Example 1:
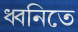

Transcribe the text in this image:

ধ্বনিতে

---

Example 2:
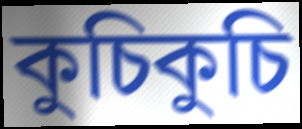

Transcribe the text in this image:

কুচিকুচি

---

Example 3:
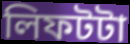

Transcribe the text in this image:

লিফটটা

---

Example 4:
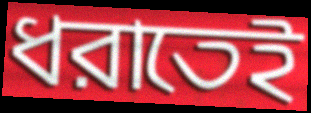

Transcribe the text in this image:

ধরাতেই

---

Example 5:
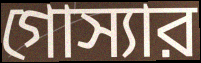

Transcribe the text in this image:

গোস্যার